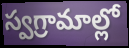
స్వగ్రామాల్లో